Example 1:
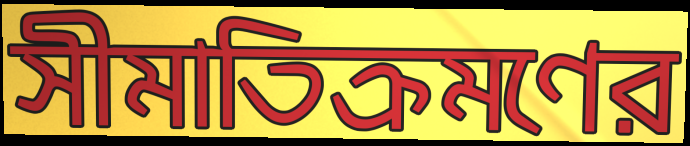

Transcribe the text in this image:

সীমাতিক্রমণের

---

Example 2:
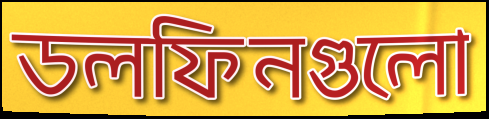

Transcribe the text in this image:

ডলফিনগুলো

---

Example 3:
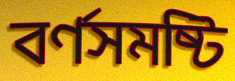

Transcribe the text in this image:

বর্ণসমষ্টি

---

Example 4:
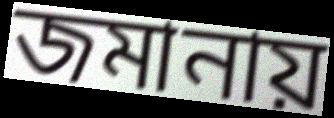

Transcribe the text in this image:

জমানায়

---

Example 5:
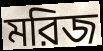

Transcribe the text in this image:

মরিজ